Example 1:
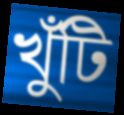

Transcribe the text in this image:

খুঁটি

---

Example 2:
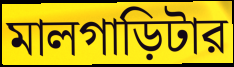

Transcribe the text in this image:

মালগাড়িটার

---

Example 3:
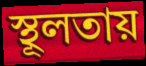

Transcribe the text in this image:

স্থূলতায়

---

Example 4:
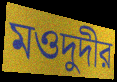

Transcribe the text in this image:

মওদুদীর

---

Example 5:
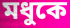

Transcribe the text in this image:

মধুকে